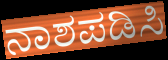
ನಾಶಪಡಿಸಿ